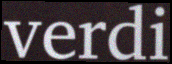
verdi